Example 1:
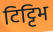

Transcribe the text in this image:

टिट्टिभ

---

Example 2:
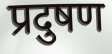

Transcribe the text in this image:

प्रदुषण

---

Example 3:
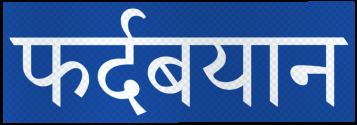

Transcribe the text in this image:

फर्दबयान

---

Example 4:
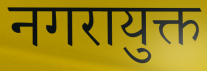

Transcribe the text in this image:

नगरायुक्त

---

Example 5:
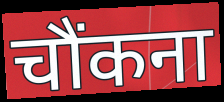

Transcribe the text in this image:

चौंकना